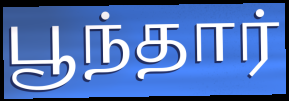
பூந்தார்